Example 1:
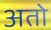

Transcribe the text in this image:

अतो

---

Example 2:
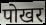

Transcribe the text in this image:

पोखर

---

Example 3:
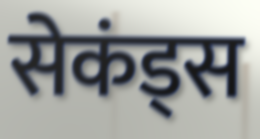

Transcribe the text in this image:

सेकंड्स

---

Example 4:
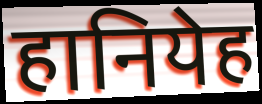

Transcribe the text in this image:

हानियेह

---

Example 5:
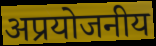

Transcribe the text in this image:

अप्रयोजनीय